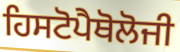
ਹਿਸਟੋਪੈਥੋਲੋਜੀ